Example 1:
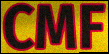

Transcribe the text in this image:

CMF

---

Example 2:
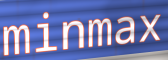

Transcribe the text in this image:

minmax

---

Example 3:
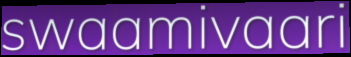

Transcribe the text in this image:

swaamivaari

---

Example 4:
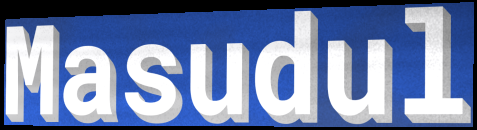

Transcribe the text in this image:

Masudul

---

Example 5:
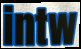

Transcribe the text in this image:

intw